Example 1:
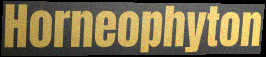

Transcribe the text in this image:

Horneophyton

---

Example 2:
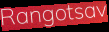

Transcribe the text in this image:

Rangotsav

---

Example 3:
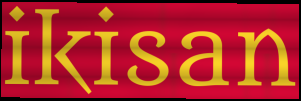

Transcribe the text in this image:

ikisan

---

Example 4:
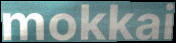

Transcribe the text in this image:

mokkai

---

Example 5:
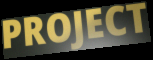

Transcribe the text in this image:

PROJECT